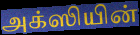
அக்ஸியின்